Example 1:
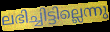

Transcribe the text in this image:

ലഭിച്ചിട്ടില്ലെന്നു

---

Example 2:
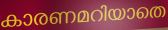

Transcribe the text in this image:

കാരണമറിയാതെ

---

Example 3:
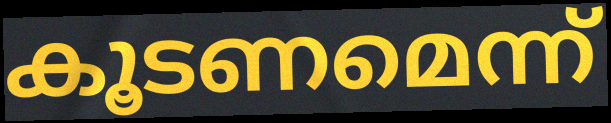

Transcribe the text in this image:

കൂടണമെന്ന്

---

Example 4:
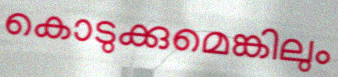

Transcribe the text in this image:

കൊടുക്കുമെങ്കിലും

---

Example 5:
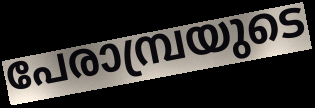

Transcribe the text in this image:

പേരാമ്പ്രയുടെ